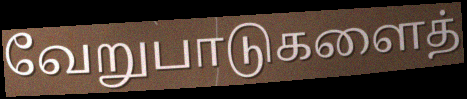
வேறுபாடுகளைத்